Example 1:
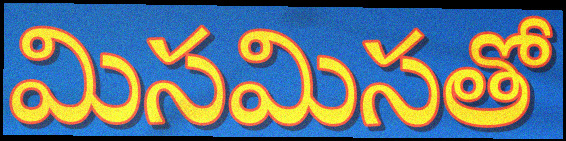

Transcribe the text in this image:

మిసమిసతో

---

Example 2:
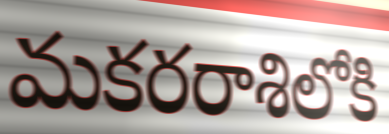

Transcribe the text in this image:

మకరరాశిలోకి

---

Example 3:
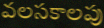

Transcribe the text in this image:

వలసకాలపు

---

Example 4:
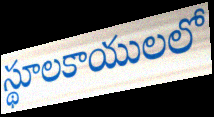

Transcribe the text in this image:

స్థూలకాయులలో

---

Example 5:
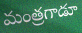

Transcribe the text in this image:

మంత్రగాడూ